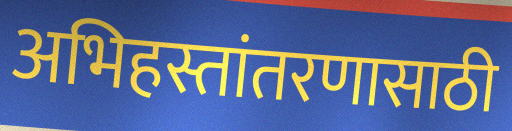
अभिहस्तांतरणासाठी